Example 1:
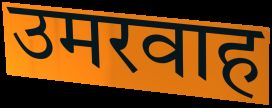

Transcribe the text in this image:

उमरवाह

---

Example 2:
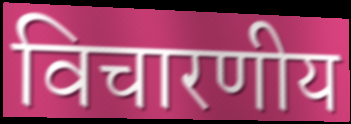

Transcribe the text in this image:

विचारणीय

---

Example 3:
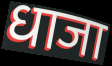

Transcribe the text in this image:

धाजा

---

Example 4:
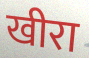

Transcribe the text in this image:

खीरा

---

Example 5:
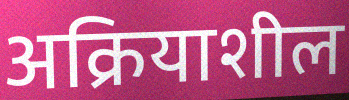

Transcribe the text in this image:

अक्रियाशील